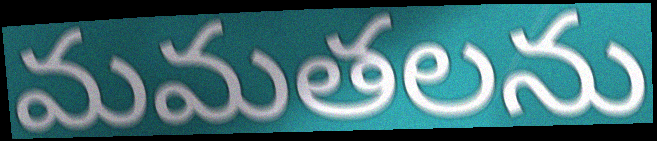
మమతలను